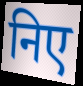
निए